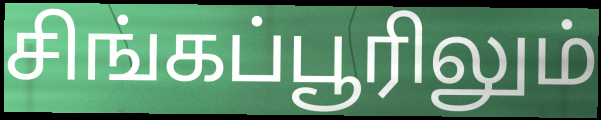
சிங்கப்பூரிலும்